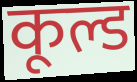
कूल्ड